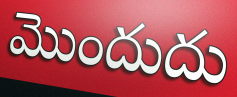
మొందుదు